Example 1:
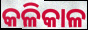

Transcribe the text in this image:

କଳିକାଳ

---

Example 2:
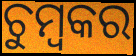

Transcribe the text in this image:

ଚୁମ୍ବକର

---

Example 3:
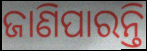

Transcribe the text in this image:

ଜାଣିପାରନ୍ତି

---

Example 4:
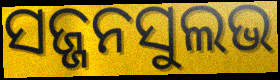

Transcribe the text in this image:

ସଜ୍ଜନସୁଲଭ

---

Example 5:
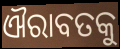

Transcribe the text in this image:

ଐରାବତକୁ